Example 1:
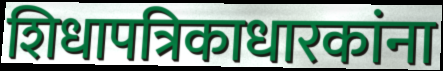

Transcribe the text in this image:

शिधापत्रिकाधारकांना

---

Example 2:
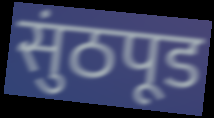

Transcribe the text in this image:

सुंठपूड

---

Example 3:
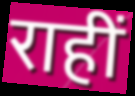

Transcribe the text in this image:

राहीं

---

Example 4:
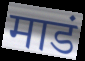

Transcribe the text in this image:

माडं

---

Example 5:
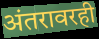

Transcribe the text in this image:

अंतरावरही